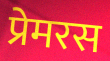
प्रेमरस